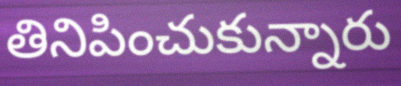
తినిపించుకున్నారు